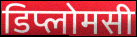
डिप्लोमसी